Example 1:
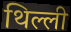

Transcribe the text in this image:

थिल्ली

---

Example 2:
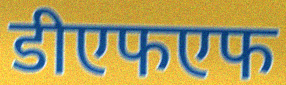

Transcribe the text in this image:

डीएफएफ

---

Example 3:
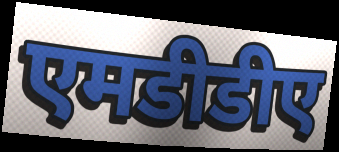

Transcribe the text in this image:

एमडीडीए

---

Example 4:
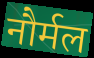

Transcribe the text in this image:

नौर्मल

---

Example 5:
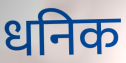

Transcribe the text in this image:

धनिक